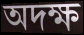
অদক্ষ